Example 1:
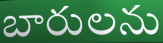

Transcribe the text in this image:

బారులను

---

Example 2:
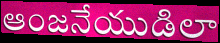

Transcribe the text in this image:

ఆంజనేయుడిలా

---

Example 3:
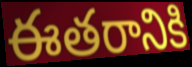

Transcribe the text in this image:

ఈతరానికి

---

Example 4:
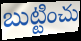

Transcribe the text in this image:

బుట్టించు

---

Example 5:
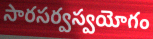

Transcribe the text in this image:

సారసర్వస్వయోగం